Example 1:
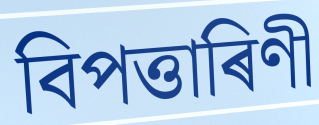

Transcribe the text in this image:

বিপত্তাৰিণী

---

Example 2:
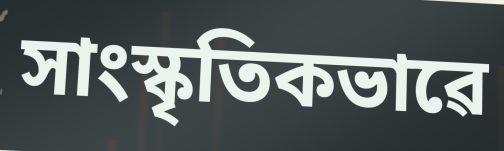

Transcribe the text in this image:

সাংস্কৃতিকভাৱে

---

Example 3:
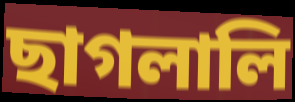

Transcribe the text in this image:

ছাগলালি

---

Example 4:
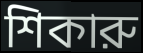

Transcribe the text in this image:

শিকাৰু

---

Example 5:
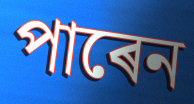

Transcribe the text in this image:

পাৰেন